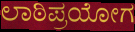
ಲಾಠಿಪ್ರಯೋಗ